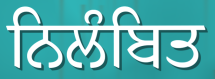
ਨਿਲੰਬਿਤ